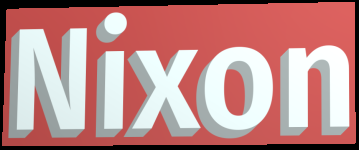
Nixon